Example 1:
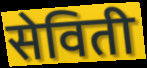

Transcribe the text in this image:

सेविती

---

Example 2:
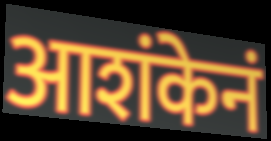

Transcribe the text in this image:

आशंकेनं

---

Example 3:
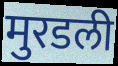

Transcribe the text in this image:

मुरडली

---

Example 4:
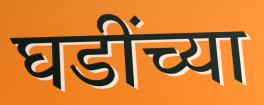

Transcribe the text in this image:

घडींच्या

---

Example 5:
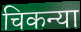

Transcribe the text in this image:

चिकन्या